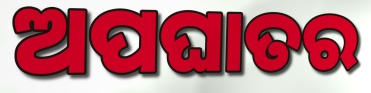
ଅପଘାତର